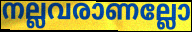
നല്ലവരാണല്ലോ